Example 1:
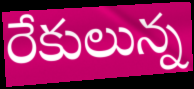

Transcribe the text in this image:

రేకులున్న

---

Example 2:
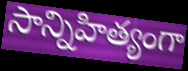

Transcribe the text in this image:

సాన్నిహిత్యంగా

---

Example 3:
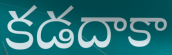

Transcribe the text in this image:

కడదాకా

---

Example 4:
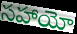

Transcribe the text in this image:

సహాయో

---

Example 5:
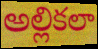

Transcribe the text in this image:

అల్లికలా